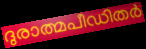
ദുരാത്മപീഡിതർ